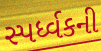
સ્પર્ધ્વકની